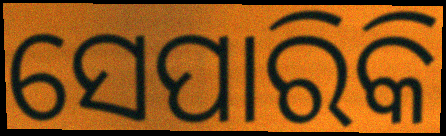
ସେପାରିକି